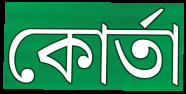
কোর্তা